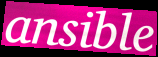
ansible